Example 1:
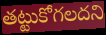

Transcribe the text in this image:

తట్టుకోగలదని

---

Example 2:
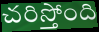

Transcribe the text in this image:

చరిస్తోంది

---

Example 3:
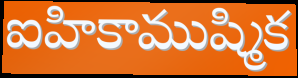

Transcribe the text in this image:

ఐహికాముష్మిక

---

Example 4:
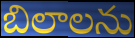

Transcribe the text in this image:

బిలాలను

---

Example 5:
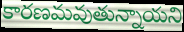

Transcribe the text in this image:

కారణమవుతున్నాయని